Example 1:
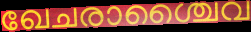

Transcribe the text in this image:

ഖേചരാശ്ചൈവ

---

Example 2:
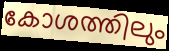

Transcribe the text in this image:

കോശത്തിലും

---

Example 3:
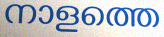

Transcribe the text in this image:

നാളത്തെ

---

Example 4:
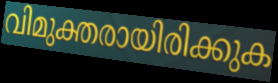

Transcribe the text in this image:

വിമുക്തരായിരിക്കുക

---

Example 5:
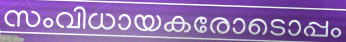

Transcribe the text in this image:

സംവിധായകരോടൊപ്പം